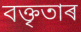
বক্তৃতাৰ